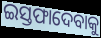
ଇସ୍ତଫାଦେବାକୁ